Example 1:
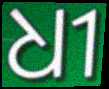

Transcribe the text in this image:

ଧୀ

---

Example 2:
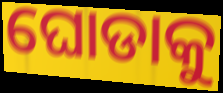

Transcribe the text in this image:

ଘୋଡାକୁ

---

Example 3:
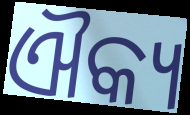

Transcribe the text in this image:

ଐକ୍ୟ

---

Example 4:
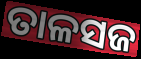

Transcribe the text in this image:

ତାଳସଜ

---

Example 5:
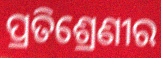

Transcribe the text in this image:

ପ୍ରତିଶ୍ରେଣୀର